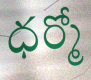
ధర్మో